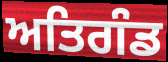
ਅਤਿਗੰਡ